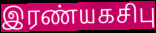
இரண்யகசிபு